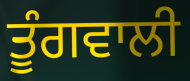
ਤੂੰਗਵਾਲੀ